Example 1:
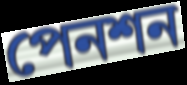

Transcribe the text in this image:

পেনশন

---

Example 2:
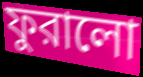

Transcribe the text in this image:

ফুরালো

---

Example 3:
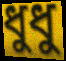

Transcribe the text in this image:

ধুধু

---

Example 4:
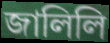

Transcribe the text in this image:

জালিলি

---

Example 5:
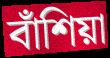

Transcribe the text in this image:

বাঁশিয়া